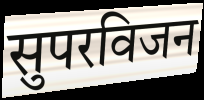
सुपरविजन